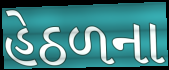
હેઠળના